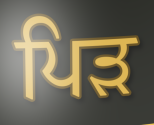
ਪਿੜ